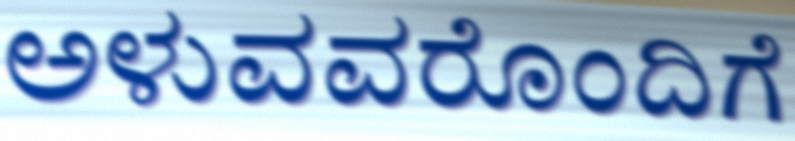
ಅಳುವವರೊಂದಿಗೆ